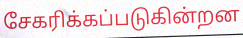
சேகரிக்கப்படுகின்றன